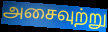
அசைவுற்று